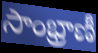
సాంభ్రాణీ